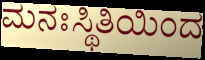
ಮನಃಸ್ಥಿತಿಯಿಂದ